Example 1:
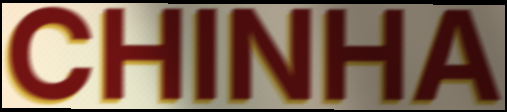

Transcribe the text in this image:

CHINHA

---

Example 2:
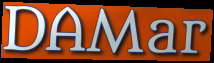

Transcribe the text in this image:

DAMar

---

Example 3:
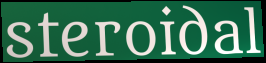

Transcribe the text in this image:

steroidal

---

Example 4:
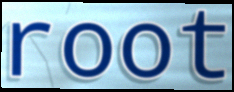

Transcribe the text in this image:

root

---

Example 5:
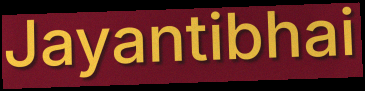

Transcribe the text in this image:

Jayantibhai